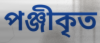
পঞ্জীকৃত